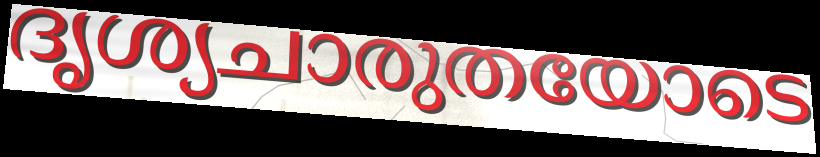
ദൃശ്യചാരുതയോടെ